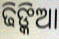
ଢିଙ୍କିଆ